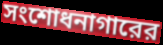
সংশোধনাগারের